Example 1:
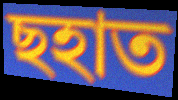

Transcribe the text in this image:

ছহাত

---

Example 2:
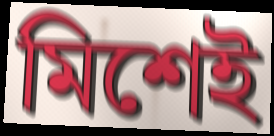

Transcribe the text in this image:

মিশেই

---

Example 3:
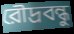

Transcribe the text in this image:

রৌদ্রবন্ধু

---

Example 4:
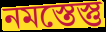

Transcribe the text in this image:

নমস্তেস্তু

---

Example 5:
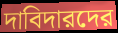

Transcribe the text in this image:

দাবিদারদের